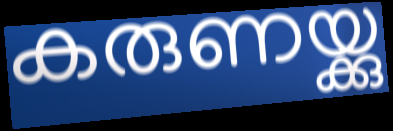
കരുണയ്ക്കു